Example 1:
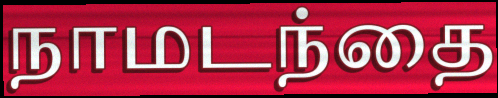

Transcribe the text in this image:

நாமடந்தை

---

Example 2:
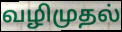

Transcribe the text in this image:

வழிமுதல்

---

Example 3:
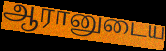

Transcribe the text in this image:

ஆரானுடைய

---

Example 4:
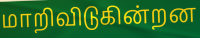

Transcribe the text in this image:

மாறிவிடுகின்றன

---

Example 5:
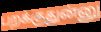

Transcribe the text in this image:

பறக்குதுன்னு